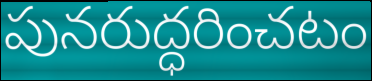
పునరుద్ధరించటం